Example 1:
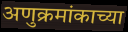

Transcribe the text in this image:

अणुक्रमांकाच्या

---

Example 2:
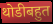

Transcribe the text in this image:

थोडीबहुत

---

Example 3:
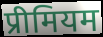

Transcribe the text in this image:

प्रीमियम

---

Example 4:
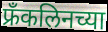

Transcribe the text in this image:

फ्रँकलिनच्या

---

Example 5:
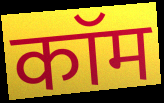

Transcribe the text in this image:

कॉम